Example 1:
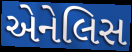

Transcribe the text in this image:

એનેલિસ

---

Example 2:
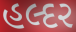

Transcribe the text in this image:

હલ્દર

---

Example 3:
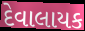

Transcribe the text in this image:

દેવાલાયક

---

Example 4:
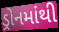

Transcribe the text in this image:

ડ્રોનમાંથી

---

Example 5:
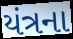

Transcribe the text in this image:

યંત્રના